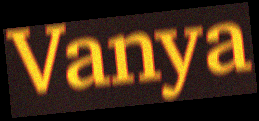
Vanya